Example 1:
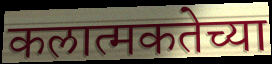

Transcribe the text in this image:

कलात्मकतेच्या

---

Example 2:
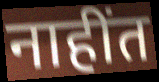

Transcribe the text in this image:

नाहींत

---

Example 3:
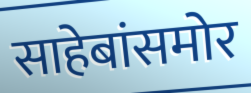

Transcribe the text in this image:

साहेबांसमोर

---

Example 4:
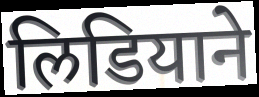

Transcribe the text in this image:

लिडियाने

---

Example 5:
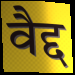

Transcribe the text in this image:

वैद्द